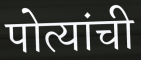
पोत्यांची